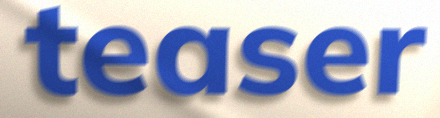
teaser